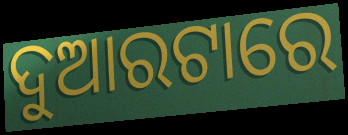
ଦୁଆରଟାରେ